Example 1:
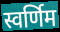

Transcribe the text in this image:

स्वर्णिम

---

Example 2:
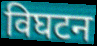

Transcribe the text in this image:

विघटन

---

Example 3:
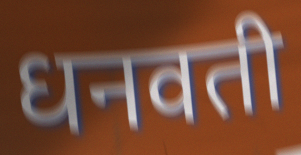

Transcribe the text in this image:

धनवती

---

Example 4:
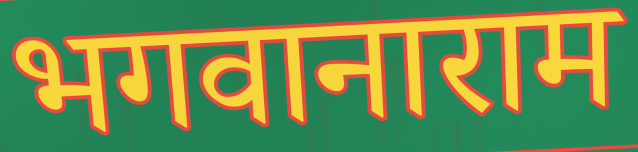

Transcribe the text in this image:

भगवानाराम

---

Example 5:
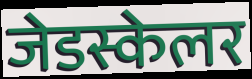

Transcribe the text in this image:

जेडस्केलर